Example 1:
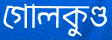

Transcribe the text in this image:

গোলকুণ্ড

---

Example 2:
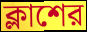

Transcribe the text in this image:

ক্লাশের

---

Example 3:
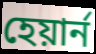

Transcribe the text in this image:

হেয়ার্ন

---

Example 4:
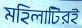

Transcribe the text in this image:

মহিলাটিরই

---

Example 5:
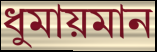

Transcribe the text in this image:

ধুমায়মান